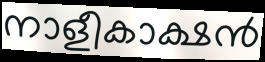
നാളീകാക്ഷൻ